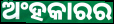
ଅଂହକାରର